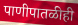
पाणीपातळीही